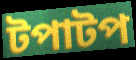
টপাটপ